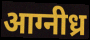
आग्नीध्र